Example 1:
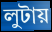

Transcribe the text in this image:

লুটায়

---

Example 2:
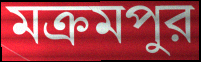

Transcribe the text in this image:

মক্রমপুর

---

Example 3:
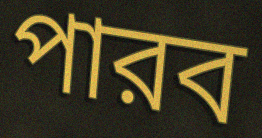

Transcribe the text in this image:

পারব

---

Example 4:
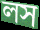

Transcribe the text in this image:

লস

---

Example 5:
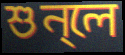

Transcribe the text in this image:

শুন্‌লে